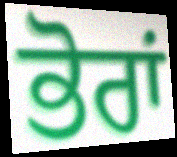
ਭੋਰਾਂ